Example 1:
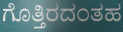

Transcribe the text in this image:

ಗೊತ್ತಿರದಂತಹ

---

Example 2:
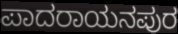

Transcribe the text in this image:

ಪಾದರಾಯನಪುರ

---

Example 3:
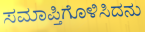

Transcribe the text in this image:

ಸಮಾಪ್ತಿಗೊಳಿಸಿದನು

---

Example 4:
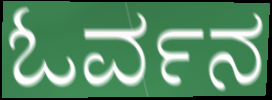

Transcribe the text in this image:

ಓರ್ವನ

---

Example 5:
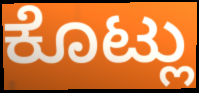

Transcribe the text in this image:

ಕೊಟ್ಲು